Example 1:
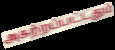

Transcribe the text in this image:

அகற்றப்பட்டதும்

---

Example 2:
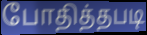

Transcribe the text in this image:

போதித்தபடி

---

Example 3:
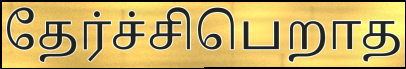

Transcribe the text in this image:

தேர்ச்சிபெறாத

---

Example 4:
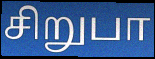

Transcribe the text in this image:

சிறுபா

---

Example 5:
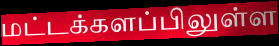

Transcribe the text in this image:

மட்டக்களப்பிலுள்ள